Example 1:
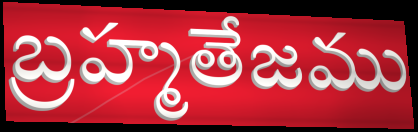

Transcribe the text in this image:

బ్రహ్మతేజము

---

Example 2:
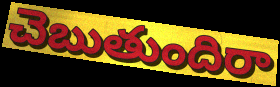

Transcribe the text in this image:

చెబుతుందిరా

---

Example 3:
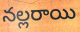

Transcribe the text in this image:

నల్లరాయి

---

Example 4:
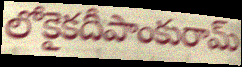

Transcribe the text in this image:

లోకైకదీపాంకురామ్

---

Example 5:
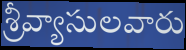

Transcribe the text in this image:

శ్రీవ్యాసులవారు